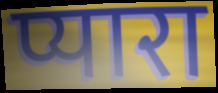
प्‍यारा